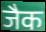
जैक